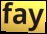
fay